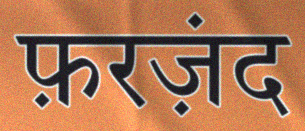
फ़रज़ंद